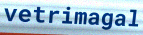
vetrimagal